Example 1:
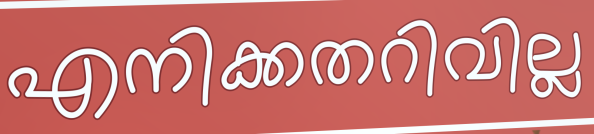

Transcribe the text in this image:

എനിക്കതറിവില്ല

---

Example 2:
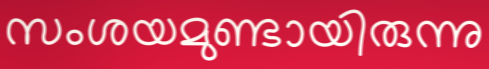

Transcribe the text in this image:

സംശയമുണ്ടായിരുന്നു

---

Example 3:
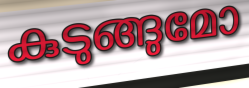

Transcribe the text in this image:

കുടുങ്ങുമോ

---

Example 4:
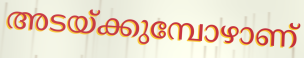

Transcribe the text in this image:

അടയ്ക്കുമ്പോഴാണ്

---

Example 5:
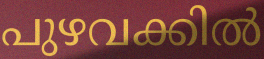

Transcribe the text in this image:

പുഴവക്കിൽ